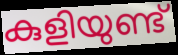
കുളിയുണ്ട്